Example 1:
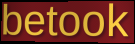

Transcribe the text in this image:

betook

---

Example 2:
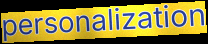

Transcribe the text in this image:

personalization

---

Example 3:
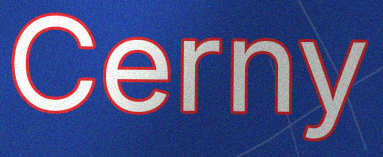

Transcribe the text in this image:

Cerny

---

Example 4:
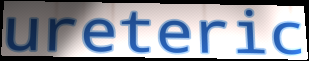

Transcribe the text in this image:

ureteric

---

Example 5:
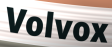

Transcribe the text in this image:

Volvox